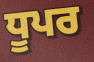
ਧੂਪਰ